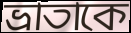
ভ্রাতাকে